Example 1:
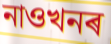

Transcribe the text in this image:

নাওখনৰ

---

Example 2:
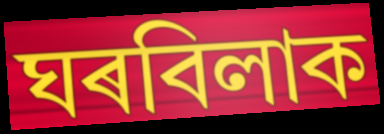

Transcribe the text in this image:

ঘৰবিলাক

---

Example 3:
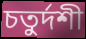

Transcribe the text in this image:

চতুৰ্দশী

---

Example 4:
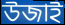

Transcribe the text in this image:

উজাই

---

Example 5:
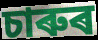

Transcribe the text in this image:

চাৰুৰ